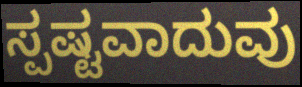
ಸ್ಪಷ್ಟವಾದುವು